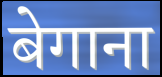
बेगाना